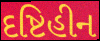
દષ્ટિહીન